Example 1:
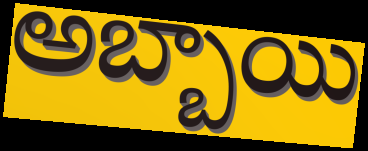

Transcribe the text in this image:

అబ్బాయి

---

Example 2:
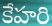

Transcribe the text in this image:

కేహరి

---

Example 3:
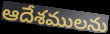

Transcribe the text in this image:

ఆదేశములను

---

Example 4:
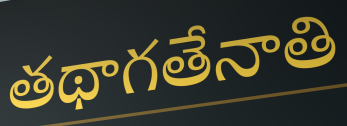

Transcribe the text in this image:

తథాగతేనాతి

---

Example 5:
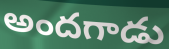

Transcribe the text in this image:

అందగాడు